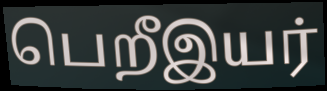
பெறீஇயர்